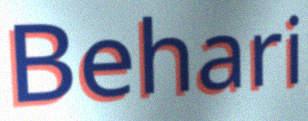
Behari